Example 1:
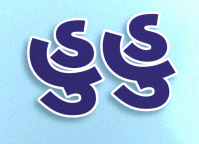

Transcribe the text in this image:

હુહુ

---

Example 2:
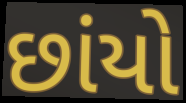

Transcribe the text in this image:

છાંયો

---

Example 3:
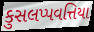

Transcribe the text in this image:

કુસલપ્પવત્તિયા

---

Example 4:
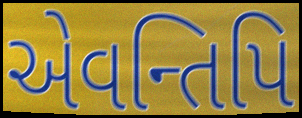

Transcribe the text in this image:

એવન્તિપિ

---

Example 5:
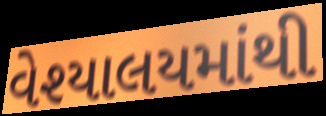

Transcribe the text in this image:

વેશ્યાલયમાંથી